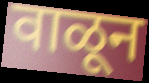
वाळून